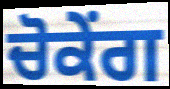
ਚੋਕੇਂਗ